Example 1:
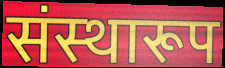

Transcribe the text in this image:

संस्थारूप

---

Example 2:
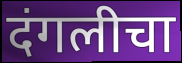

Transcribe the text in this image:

दंगलीचा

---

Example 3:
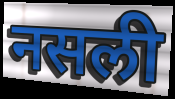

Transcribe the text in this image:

नसली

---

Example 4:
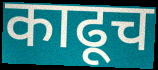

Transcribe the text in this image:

काढूच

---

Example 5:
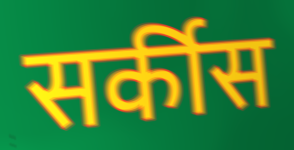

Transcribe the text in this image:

सर्कीस